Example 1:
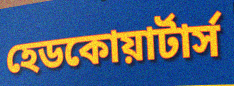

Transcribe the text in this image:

হেডকোয়ার্টার্স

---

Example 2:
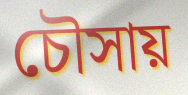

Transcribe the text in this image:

চৌসায়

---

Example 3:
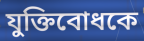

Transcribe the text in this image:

যুক্তিবোধকে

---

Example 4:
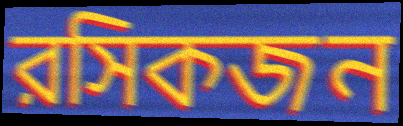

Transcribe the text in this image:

রসিকজন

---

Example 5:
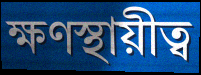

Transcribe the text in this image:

ক্ষণস্থায়ীত্ব